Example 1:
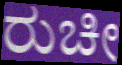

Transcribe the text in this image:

ರುಚೀ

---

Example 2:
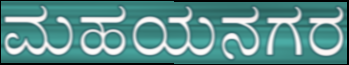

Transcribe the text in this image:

ಮಹಯನಗರ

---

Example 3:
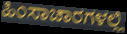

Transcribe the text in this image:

ಹಿಂಸಾಚಾರಗಳಲ್ಲಿ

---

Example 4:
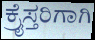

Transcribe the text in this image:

ಕ್ರೈಸ್ತರಿಗಾಗಿ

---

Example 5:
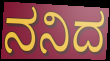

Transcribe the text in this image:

ನನಿದ